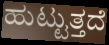
ಹುಟ್ಟುತ್ತದೆ